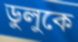
ডুলুকে